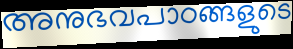
അനുഭവപാഠങ്ങളുടെ